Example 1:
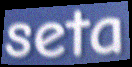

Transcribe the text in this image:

seta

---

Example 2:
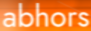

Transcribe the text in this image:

abhors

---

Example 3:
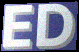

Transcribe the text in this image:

ED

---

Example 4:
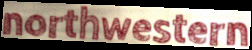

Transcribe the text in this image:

northwestern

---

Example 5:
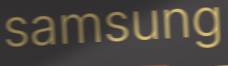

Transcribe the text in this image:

samsung